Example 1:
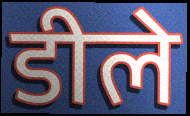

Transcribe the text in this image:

डीले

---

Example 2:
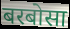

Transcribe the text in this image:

बरबोसा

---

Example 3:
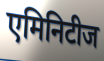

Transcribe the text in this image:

एमिनिटीज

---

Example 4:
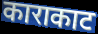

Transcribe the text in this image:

काराकाट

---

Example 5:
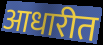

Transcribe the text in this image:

आधारीत